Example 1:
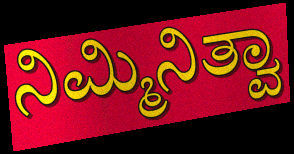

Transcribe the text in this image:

ನಿಮ್ಮಿನಿತ್ವಾ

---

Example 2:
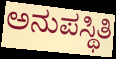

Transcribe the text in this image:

ಅನುಪಸ್ಥಿತಿ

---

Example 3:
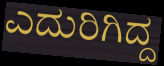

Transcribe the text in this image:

ಎದುರಿಗಿದ್ದ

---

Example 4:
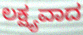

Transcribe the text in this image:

ಲಕ್ಷ್ಯವಾದ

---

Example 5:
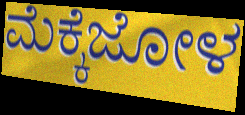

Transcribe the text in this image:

ಮೆಕ್ಕೆಜೋಳ